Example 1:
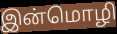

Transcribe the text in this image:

இன்மொழி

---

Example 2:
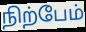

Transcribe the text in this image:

நிற்பேம்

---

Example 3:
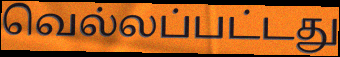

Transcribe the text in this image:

வெல்லப்பட்டது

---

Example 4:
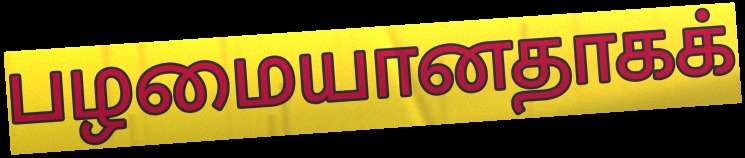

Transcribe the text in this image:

பழமையானதாகக்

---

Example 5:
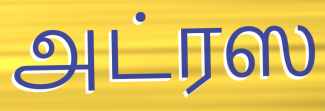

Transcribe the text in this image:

அட்ரஸ